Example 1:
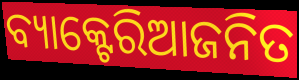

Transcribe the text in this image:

ବ୍ୟାକ୍ଟେରିଆଜନିତ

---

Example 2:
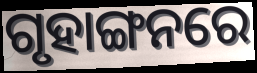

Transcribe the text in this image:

ଗୃହାଙ୍ଗନରେ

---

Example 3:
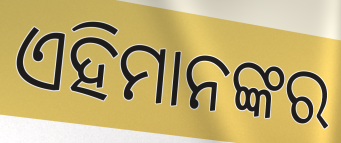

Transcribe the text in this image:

ଏହିମାନଙ୍କର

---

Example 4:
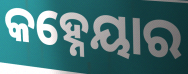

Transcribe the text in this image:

କହ୍ନେୟାର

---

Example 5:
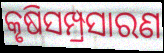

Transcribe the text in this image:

କୃଷିସମ୍ପ୍ରସାରଣ